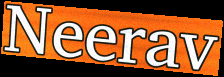
Neerav